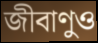
জীবাণুও